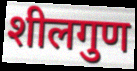
शीलगुण